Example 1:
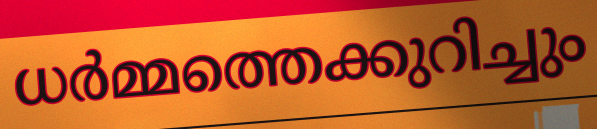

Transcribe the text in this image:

ധർമ്മത്തെക്കുറിച്ചും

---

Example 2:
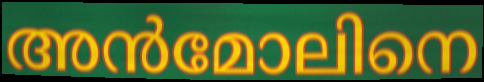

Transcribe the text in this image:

അൻമോലിനെ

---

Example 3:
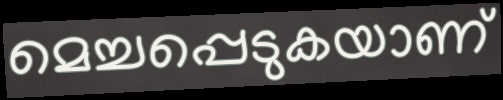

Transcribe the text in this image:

മെച്ചപ്പെടുകയാണ്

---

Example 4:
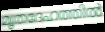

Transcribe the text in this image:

മൃതദേഹത്തിൽ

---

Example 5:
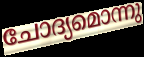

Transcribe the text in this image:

ചോദ്യമൊന്നു